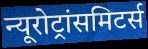
न्यूरोट्रांसमिटर्स